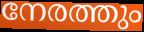
നേരത്തും